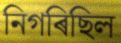
নিগৰিছিল